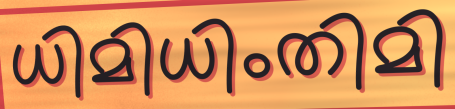
ധിമിധിംതിമി